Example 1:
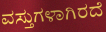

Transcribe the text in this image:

ವಸ್ತುಗಳಾಗಿರದೆ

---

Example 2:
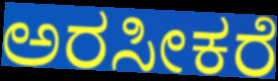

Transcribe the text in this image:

ಅರಸೀಕರೆ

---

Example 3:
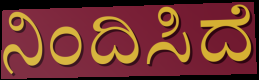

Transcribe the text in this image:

ನಿಂದಿಸಿದೆ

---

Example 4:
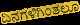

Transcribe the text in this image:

ದಿನಗಳಿಗಿಂತಲೂ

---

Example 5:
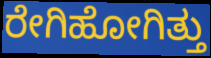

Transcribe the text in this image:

ರೇಗಿಹೋಗಿತ್ತು